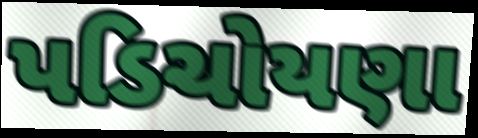
પડિચોયણા